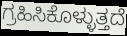
ಗ್ರಹಿಸಿಕೊಳ್ಳುತ್ತದೆ